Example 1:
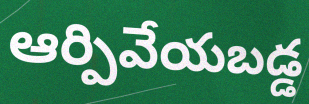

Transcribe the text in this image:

ఆర్పివేయబడ్డ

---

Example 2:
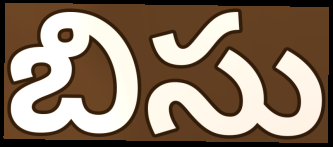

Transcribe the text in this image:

బిసు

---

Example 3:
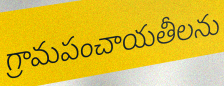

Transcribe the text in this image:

గ్రామపంచాయతీలను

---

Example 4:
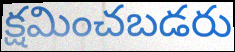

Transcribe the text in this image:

క్షమించబడరు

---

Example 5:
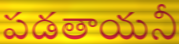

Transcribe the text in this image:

పడతాయనీ